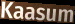
Kaasum